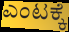
ಎಂಟಕ್ಕೆ